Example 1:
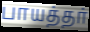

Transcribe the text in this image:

பாயத்தர்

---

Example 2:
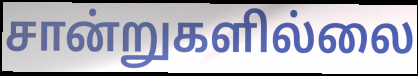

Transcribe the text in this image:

சான்றுகளில்லை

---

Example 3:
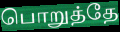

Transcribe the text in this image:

பொறுத்தே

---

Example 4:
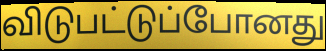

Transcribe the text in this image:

விடுபட்டுப்போனது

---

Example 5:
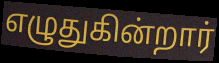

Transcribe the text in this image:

எழுதுகின்றார்